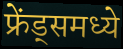
फ्रेंड्समध्ये